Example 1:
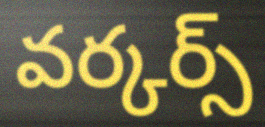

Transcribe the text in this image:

వర్కర్స్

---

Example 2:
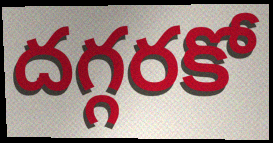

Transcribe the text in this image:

దగ్గరకో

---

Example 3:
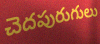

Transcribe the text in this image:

చెదపురుగులు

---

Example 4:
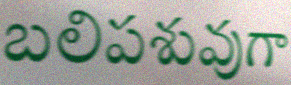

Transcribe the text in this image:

బలిపశువుగా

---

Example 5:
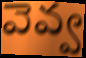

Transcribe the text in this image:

వెవ్వ